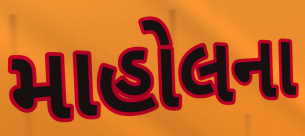
માહોલના